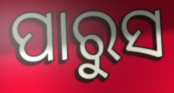
ପାରୁସ